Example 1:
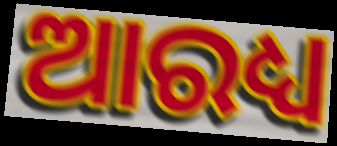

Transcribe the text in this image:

ଆରଧ୍ୟ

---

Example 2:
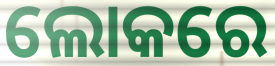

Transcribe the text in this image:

ଲୋକରେ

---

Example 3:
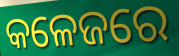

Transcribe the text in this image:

କଳେଜରେ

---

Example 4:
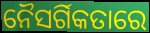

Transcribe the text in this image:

ନୈସର୍ଗିକତାରେ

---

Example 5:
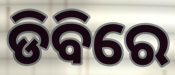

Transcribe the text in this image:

ଡିବିରେ